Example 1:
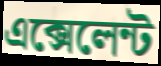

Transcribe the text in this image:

এক্সেলেন্ট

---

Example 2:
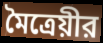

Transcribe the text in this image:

মৈত্রেয়ীর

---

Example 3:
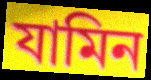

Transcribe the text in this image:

যামিন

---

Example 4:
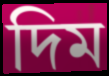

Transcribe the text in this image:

দিম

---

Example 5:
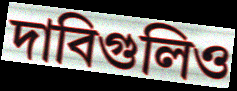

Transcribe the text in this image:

দাবিগুলিও